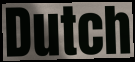
Dutch